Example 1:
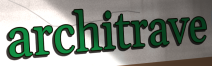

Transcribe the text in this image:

architrave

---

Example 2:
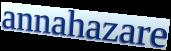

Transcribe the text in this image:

annahazare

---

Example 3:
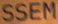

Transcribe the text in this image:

SSEM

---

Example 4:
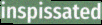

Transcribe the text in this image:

inspissated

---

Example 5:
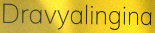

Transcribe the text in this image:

Dravyalingina